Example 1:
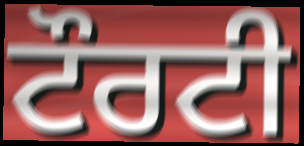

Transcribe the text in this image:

ਟੌਰਟੀ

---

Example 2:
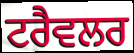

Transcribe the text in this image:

ਟਰੈਵਲਰ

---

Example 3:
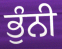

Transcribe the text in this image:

ਭੁੰਨੀ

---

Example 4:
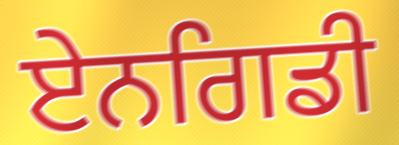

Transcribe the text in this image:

ਏਨਗਿਡੀ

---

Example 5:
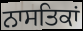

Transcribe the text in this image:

ਨਾਸਤਿਕਾਂ